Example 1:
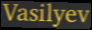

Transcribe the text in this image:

Vasilyev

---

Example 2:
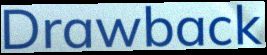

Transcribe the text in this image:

Drawback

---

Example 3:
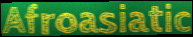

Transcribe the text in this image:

Afroasiatic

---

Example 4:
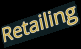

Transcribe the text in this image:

Retailing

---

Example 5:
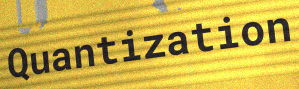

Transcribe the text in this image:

Quantization